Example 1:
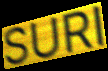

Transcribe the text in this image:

SURI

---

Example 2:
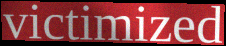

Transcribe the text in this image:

victimized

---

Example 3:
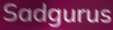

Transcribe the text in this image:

Sadgurus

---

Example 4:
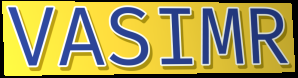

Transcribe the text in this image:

VASIMR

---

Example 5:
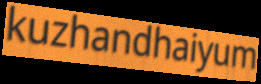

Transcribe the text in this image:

kuzhandhaiyum